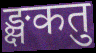
ङ्क्षकतु